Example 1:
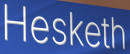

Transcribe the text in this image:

Hesketh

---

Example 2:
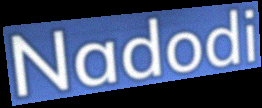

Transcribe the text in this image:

Nadodi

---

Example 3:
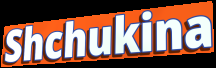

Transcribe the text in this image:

Shchukina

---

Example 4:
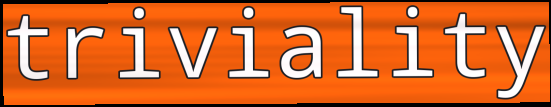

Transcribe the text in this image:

triviality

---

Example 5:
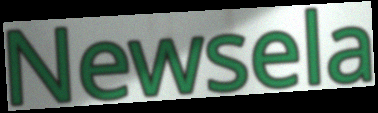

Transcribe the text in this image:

Newsela